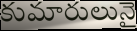
కుమారులునై